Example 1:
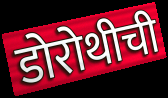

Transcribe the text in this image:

डोरोथीची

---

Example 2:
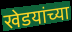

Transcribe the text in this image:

खेडयांच्या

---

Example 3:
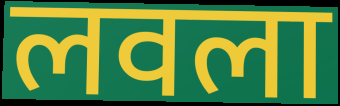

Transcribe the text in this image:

लवला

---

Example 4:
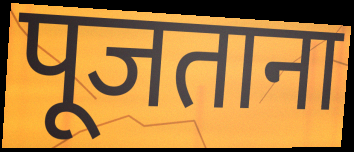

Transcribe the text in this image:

पूजताना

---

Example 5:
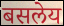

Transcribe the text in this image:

बसलेय